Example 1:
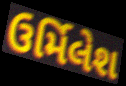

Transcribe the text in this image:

ઉર્મિલેશ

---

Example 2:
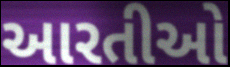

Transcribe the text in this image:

આરતીઓ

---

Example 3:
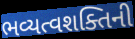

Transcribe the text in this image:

ભવ્યત્વશક્તિની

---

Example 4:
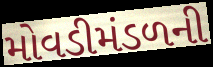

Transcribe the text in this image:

મોવડીમંડળની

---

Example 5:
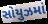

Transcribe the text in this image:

સોયુઝમાં